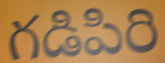
గడిపిరి